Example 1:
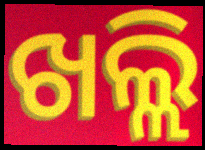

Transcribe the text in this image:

ଖଲ୍ଲି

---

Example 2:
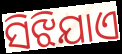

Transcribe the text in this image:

ସିଝିଯାଏ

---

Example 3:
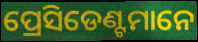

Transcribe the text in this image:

ପ୍ରେସିଡେଣ୍ଟମାନେ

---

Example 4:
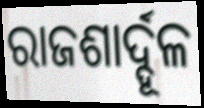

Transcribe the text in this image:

ରାଜଶାର୍ଦ୍ଦୂଳ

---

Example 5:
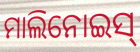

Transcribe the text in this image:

ମାଲିନୋଇସ୍